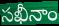
సఖీనాం